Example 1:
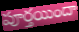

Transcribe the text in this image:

పూర్తయిందా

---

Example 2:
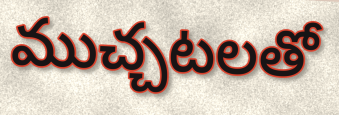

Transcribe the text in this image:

ముచ్చటలతో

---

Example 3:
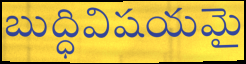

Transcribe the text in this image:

బుద్ధివిషయమై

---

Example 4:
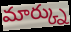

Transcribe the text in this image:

మార్క్ను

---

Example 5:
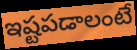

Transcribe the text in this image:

ఇష్టపడాలంటే